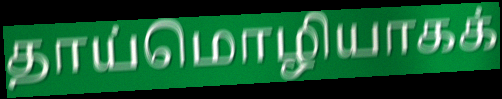
தாய்மொழியாகக்